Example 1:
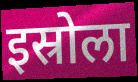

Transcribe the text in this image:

इस्रोला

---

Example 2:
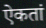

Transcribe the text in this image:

ऐकतां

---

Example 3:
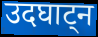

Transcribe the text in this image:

उदघाट्न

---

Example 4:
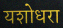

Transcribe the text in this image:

यशोधरा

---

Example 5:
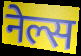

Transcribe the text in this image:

नेल्स